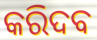
କରିଦବ